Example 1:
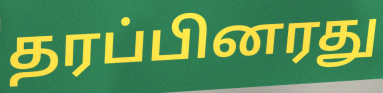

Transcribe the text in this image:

தரப்பினரது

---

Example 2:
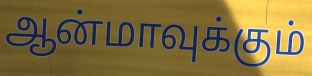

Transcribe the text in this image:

ஆன்மாவுக்கும்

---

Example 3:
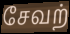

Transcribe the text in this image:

சேவற்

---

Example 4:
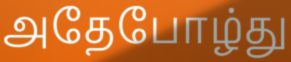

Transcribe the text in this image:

அதேபோழ்து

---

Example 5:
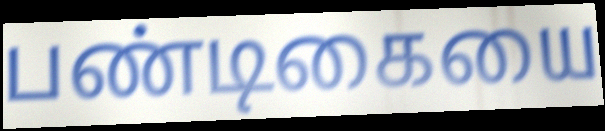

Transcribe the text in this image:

பண்டிகையை